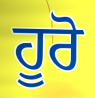
ਹੂਰੋ